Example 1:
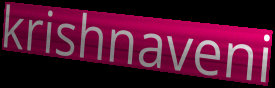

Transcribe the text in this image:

krishnaveni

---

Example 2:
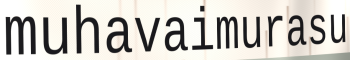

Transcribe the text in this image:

muhavaimurasu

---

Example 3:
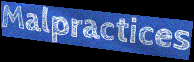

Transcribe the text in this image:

Malpractices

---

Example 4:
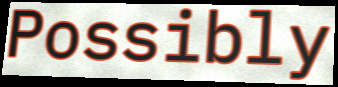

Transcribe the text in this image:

Possibly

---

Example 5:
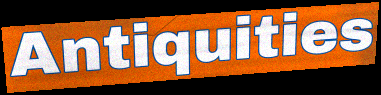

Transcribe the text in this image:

Antiquities